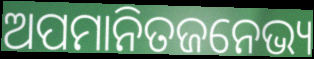
ଅପମାନିତଜନେଭ୍ୟ